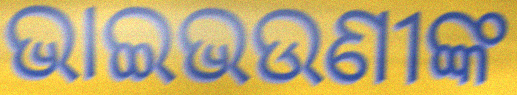
ଭାଇଭଉଣୀଙ୍କ